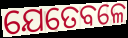
ଯେତେବଳେ